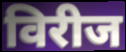
विरीज